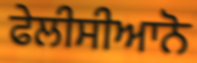
ਫੇਲੀਸੀਆਨੋ